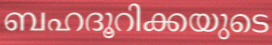
ബഹദൂറിക്കയുടെ